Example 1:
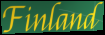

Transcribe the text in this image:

Finland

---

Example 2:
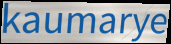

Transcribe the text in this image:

kaumarye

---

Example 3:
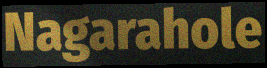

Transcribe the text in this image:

Nagarahole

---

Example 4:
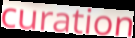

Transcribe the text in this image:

curation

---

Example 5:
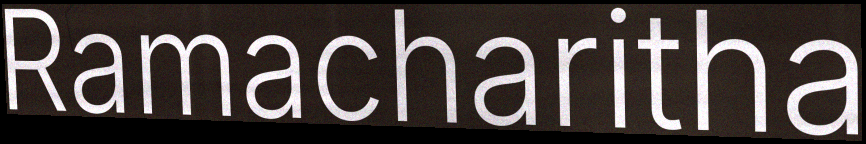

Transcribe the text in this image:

Ramacharitha